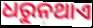
ଧରୁନଥାଏ